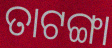
ତାଟଙ୍ଗା